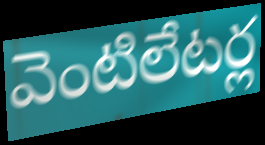
వెంటిలేటర్ల